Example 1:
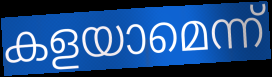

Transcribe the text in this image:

കളയാമെന്ന്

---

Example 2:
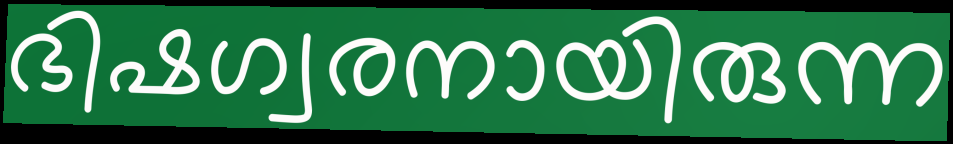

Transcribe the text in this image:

ഭിഷഗ്വരനായിരുന്ന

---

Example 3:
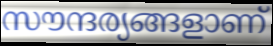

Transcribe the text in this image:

സൗന്ദര്യങ്ങളാണ്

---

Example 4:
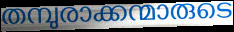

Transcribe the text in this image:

തമ്പുരാക്കന്മാരുടെ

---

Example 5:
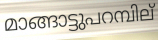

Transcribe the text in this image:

മാങ്ങാട്ടുപറമ്പില്